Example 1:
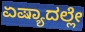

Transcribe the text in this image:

ಏಷ್ಯಾದಲ್ಲೇ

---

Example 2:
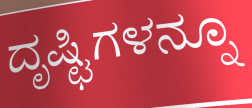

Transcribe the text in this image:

ದೃಷ್ಟಿಗಳನ್ನೂ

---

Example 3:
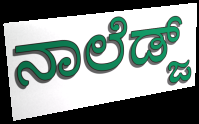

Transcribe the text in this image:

ನಾಲೆಡ್ಜ್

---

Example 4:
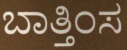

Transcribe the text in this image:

ಬಾತ್ತಿಂಸ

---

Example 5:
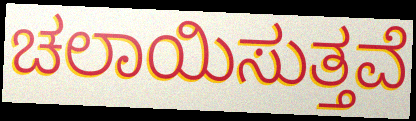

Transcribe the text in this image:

ಚಲಾಯಿಸುತ್ತವೆ